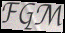
FGM